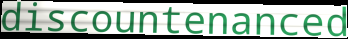
discountenanced